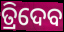
ତ୍ରିଦେବ